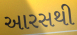
આરસથી